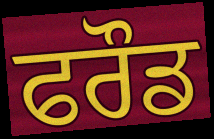
ਫਰੌਡ